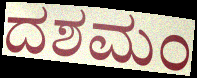
ದಶಮಂ